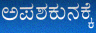
ಅಪಶಕುನಕ್ಕೆ